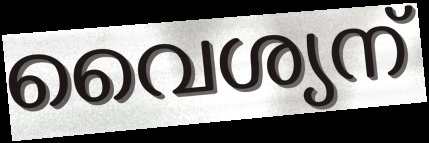
വൈശ്യന്